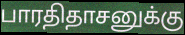
பாரதிதாசனுக்கு